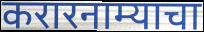
करारनाम्याचा